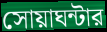
সোয়াঘন্টার